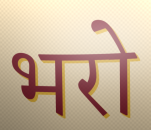
भरो